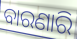
ବାରଣାରି